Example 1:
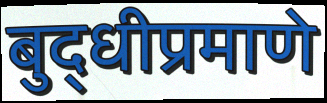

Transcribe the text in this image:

बुद्धीप्रमाणे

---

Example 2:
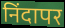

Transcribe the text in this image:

निंदापर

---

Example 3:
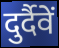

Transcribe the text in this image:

दुर्दैवें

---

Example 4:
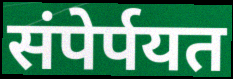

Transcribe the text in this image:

संपेर्पयत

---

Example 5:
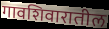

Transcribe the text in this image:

गावशिवारातील